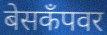
बेसकॅंपवर